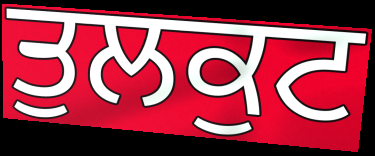
ਤੁਲਕੁਟ